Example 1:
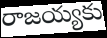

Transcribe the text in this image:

రాజయ్యకు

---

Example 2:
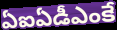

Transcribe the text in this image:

ఏఐఏడీఎంకే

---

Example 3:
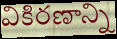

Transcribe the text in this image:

వికిరణాన్ని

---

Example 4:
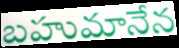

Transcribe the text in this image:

బహుమానేన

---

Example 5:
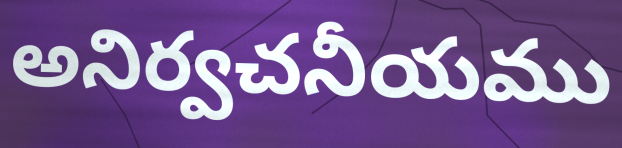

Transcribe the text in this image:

అనిర్వచనీయము